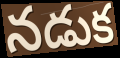
నడుక